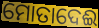
ମୋତାଦେଈ